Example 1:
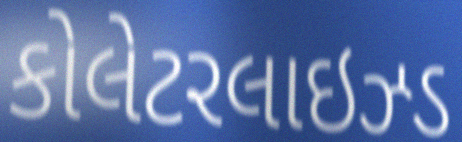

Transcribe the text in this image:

કોલેટરલાઇઝ્ડ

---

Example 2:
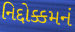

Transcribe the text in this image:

નિદ્દોક્કમનં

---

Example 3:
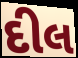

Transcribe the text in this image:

દીલ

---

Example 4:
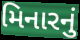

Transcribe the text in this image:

મિનારનું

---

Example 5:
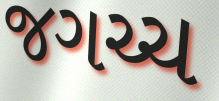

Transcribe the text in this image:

જગચ્ચ